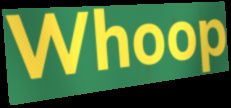
Whoop